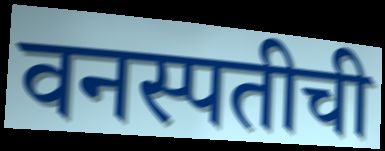
वनस्पतीची